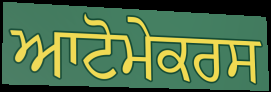
ਆਟੋਮੇਕਰਸ